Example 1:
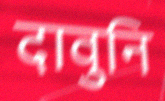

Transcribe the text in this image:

दावुनि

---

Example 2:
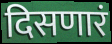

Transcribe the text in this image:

दिसणारं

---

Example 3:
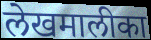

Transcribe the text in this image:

लेखमालीका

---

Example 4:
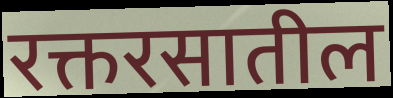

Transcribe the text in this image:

रक्तरसातील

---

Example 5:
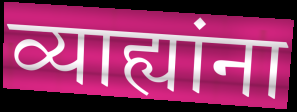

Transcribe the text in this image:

व्याह्यांना